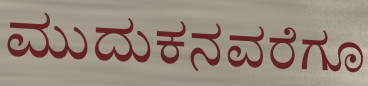
ಮುದುಕನವರೆಗೂ